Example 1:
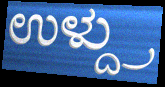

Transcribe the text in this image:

ಉಳ್ದ್ರು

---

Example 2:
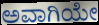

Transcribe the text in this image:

ಅವಾಗಿಯೇ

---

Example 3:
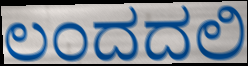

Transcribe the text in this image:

ಲಂದದಲಿ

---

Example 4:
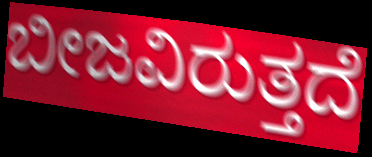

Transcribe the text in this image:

ಬೀಜವಿರುತ್ತದೆ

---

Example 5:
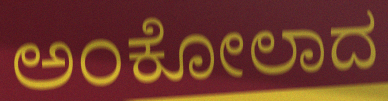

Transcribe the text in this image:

ಅಂಕೋಲಾದ